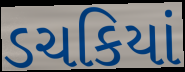
ડચકિયાં